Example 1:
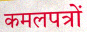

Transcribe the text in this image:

कमलपत्रों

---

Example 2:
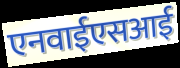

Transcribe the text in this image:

एनवाईएसआई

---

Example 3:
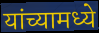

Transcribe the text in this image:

यांच्यामध्ये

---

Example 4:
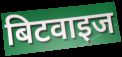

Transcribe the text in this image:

बिटवाइज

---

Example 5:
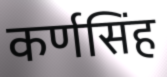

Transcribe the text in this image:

कर्णसिंह